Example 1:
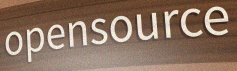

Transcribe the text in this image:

opensource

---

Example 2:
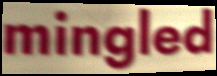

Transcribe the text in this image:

mingled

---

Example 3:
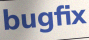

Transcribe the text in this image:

bugfix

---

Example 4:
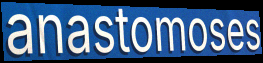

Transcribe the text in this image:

anastomoses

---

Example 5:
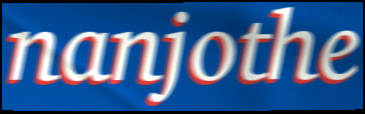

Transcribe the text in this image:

nanjothe